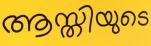
ആസ്തിയുടെ